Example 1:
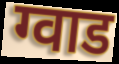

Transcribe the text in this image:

ग्वाड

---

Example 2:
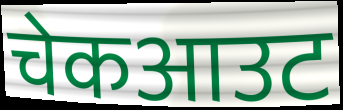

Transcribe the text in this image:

चेकआउट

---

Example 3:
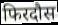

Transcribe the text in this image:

फिरदौस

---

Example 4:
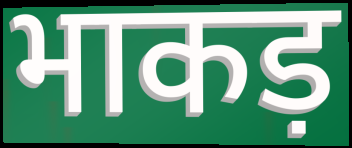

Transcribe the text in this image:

भाकड़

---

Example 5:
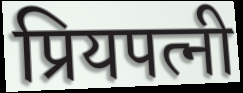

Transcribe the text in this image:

प्रियपत्नी